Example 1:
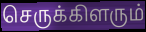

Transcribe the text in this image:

செருக்கிளரும்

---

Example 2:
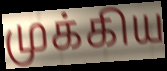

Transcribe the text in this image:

முக்கிய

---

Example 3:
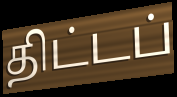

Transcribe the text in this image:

திட்டப்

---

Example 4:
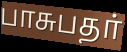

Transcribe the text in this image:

பாசுபதர்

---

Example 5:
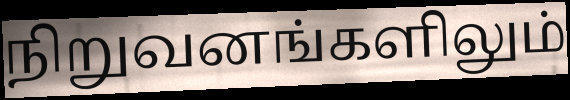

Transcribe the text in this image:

நிறுவனங்களிலும்